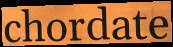
chordate